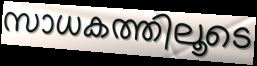
സാധകത്തിലൂടെ